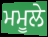
ਮਮੂਲੇ